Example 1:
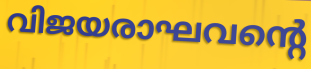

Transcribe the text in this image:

വിജയരാഘവന്റെ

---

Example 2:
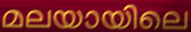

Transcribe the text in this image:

മലയായിലെ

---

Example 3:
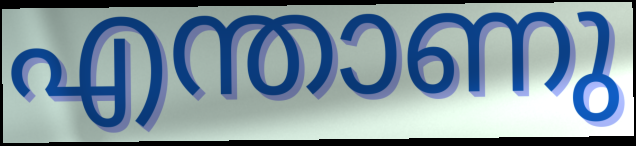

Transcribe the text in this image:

എന്താണു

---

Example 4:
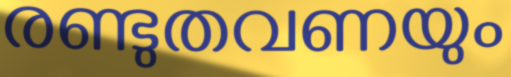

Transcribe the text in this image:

രണ്ടുതവണയും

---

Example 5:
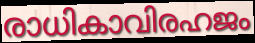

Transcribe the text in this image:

രാധികാവിരഹജം